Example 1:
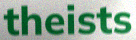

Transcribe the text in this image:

theists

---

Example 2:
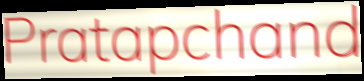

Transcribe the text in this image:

Pratapchand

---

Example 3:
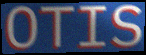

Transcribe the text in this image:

OTIS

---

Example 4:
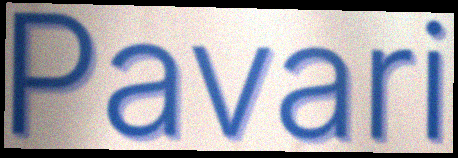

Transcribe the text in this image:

Pavari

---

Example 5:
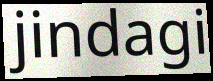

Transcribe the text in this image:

jindagi